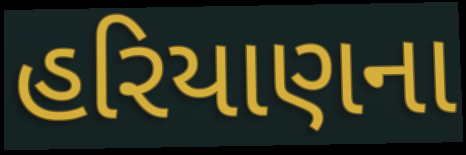
હરિયાણના